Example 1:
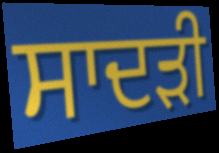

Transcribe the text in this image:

ਸਾਦੜੀ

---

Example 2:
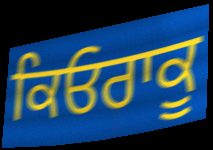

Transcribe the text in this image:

ਕਿਓਰਾਕੂ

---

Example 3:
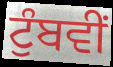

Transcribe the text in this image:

ਟੁੰਬਵੀਂ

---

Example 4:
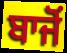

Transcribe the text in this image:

ਬਾਜੋਂ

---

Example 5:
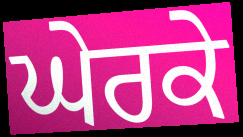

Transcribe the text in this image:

ਘੇਰਕੇ